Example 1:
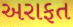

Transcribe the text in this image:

અરાફત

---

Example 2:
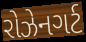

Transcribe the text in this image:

રોઝેનગર્ટ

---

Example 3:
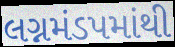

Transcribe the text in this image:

લગ્નમંડપમાંથી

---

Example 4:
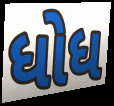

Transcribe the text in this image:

ધોધ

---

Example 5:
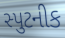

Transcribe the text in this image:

સ્પુટનીક